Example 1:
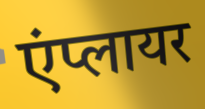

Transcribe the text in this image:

एंप्लायर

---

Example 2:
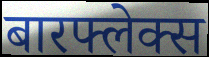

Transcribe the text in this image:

बारफ्लेक्स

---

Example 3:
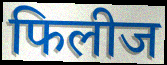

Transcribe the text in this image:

फिलीज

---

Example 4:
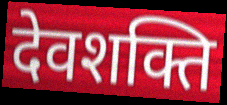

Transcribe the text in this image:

देवशक्ति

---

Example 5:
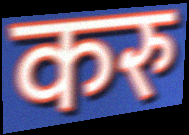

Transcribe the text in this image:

करु